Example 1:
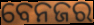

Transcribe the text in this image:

ବେନଜର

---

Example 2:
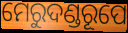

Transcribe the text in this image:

ମେରୁଦଣ୍ଡରୂପେ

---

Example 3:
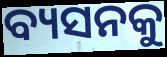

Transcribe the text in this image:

ବ୍ୟସନକୁ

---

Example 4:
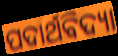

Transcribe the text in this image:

ପଦାର୍ଥବିଦ୍ୟା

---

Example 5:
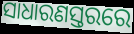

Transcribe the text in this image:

ସାଧାରଣସ୍ତରରେ